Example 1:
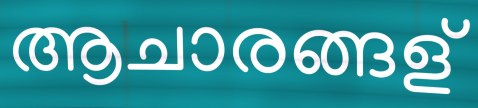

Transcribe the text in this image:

ആചാരങ്ങള്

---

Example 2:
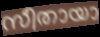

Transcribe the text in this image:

സീതായാ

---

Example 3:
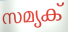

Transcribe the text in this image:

സമ്യക്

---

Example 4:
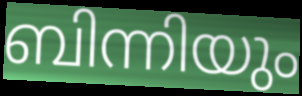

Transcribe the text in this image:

ബിന്നിയും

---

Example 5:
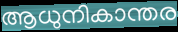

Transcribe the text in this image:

ആധുനികാന്തര